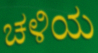
ಚಳಿಯ